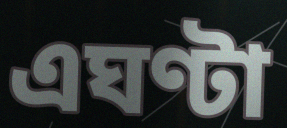
এঘণ্টা